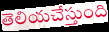
తెలియచేస్తుంది